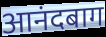
आनंदबाग